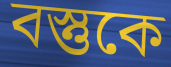
বস্তুকে